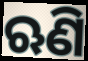
ଋଣି